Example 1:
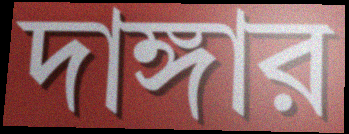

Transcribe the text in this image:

দাঙ্গার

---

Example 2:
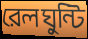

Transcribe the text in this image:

রেলঘুন্টি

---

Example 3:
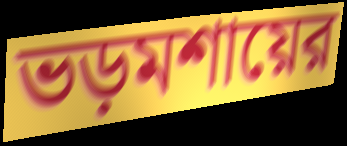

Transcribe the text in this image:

ভড়মশায়ের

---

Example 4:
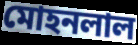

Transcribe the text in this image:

মোহনলাল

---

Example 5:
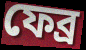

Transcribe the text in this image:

ফেব্র